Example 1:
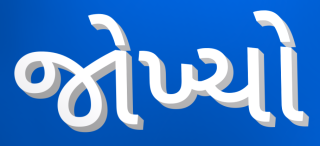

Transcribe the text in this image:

જોખ્યો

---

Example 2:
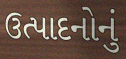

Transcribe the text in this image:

ઉત્પાદનોનું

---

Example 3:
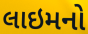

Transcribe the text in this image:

લાઇમનો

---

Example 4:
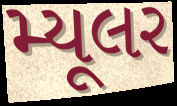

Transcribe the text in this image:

મ્યૂલર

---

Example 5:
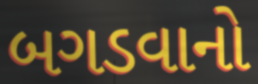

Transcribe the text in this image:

બગડવાનો